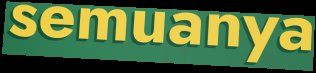
semuanya